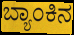
ಬ್ಯಾಂಕಿನ